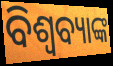
ବିଶ୍ୱବ୍ୟାଙ୍କ